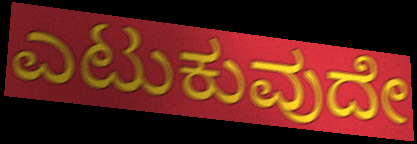
ಎಟುಕುವುದೇ